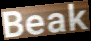
Beak